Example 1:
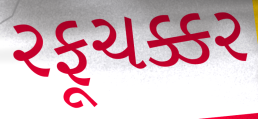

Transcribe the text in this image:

રફૂચક્કર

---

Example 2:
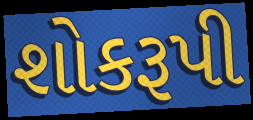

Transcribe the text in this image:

શોકરૂપી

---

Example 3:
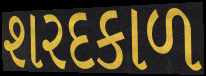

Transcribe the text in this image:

શરદકાળ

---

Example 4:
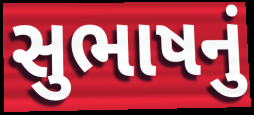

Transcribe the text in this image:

સુભાષનું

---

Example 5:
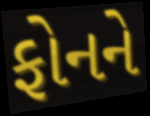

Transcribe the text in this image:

ફોનને